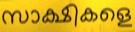
സാക്ഷികളെ